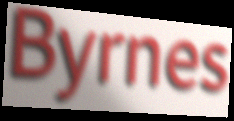
Byrnes